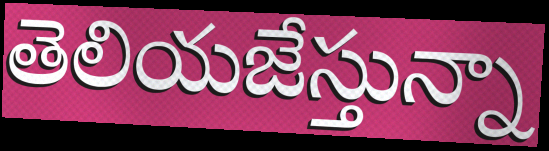
తెలియజేస్తున్నా